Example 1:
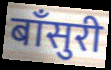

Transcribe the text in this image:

बाँसुरी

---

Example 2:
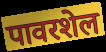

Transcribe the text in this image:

पावरशेल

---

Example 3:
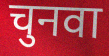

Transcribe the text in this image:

चुनवा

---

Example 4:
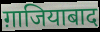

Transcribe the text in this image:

ग़ाजियाबाद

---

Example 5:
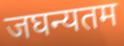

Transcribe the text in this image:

जघन्यतम